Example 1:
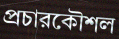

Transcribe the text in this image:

প্রচারকৌশল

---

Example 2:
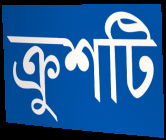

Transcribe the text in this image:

ক্রুশটি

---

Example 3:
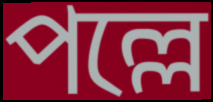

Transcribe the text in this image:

পল্লে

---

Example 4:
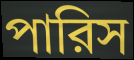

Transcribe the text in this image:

পারিস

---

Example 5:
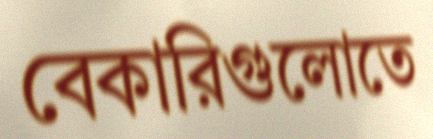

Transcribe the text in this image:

বেকারিগুলোতে